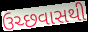
ઉચ્છવાસથી